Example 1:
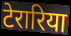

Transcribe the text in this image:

टेरारिया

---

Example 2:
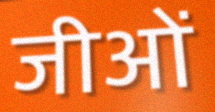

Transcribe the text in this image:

जीओं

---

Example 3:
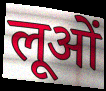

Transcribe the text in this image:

लूओं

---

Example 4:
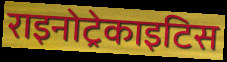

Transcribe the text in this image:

राइनोट्रेकाइटिस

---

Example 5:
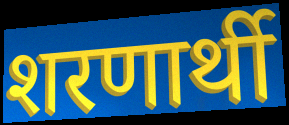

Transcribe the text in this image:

शरणार्थी